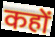
कहों